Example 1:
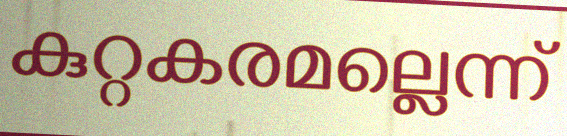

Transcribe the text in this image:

കുറ്റകരമല്ലെന്ന്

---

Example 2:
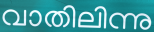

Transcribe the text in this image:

വാതിലിന്നു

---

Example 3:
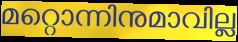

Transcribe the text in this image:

മറ്റൊന്നിനുമാവില്ല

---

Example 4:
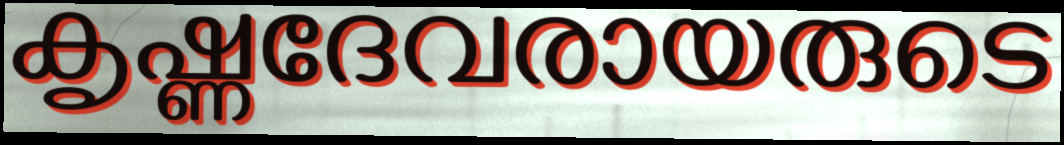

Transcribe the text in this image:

കൃഷ്ണദേവരായരുടെ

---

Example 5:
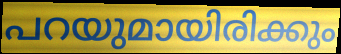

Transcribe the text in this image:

പറയുമായിരിക്കും